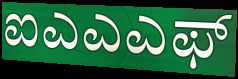
ಐಎಎಎಫ್